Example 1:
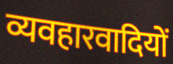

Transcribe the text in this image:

व्यवहारवादियों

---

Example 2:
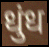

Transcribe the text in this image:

धुंध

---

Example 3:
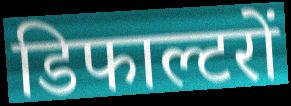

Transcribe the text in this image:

डिफाल्टरों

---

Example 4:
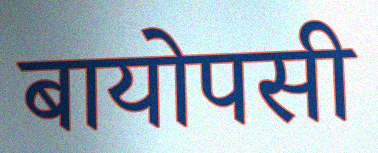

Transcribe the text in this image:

बायोपसी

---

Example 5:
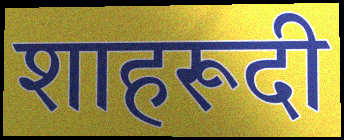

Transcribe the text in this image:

शाहरूदी